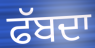
ਫੱਬਦਾ